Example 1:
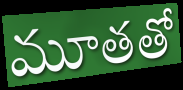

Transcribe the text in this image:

మూతతో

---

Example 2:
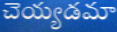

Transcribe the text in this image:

చెయ్యడమా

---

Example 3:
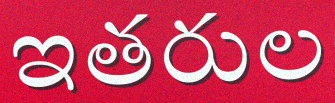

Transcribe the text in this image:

ఇతరుల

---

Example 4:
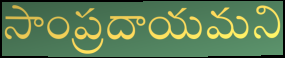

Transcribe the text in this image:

సాంప్రదాయమని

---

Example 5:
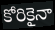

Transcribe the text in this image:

కోరికైనా